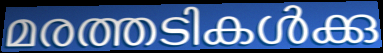
മരത്തടികൾക്കു